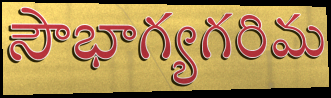
సౌభాగ్యగరిమ